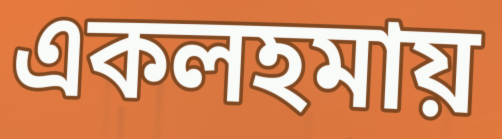
একলহমায়